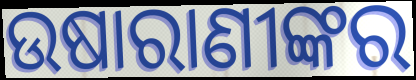
ଉଷାରାଣୀଙ୍କର